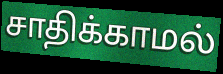
சாதிக்காமல்